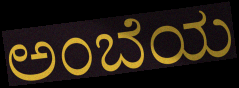
ಅಂಬೆಯ